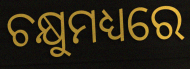
ଚକ୍ଷୁମଧ୍ଯରେ